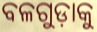
ବଳଗୁଡ଼ାକୁ